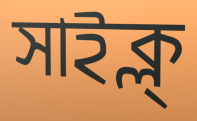
সাইক্ল্